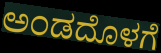
ಅಂಡದೊಳಗೆ